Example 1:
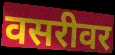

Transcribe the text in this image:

वसरीवर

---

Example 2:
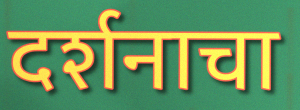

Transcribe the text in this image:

दर्शनाचा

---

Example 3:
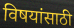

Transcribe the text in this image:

विषयांसाठी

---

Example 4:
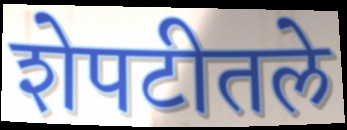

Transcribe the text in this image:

शेपटीतले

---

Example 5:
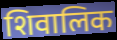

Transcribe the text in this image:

शिवालिक